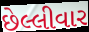
છેલ્લીવાર